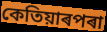
কেতিয়াৰপৰা